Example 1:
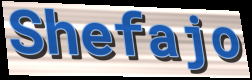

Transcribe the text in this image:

Shefajo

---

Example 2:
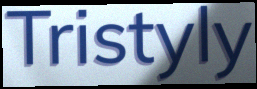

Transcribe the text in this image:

Tristyly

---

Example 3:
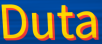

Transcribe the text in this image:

Duta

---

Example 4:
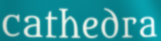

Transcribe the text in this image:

cathedra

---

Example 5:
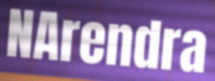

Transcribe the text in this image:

NArendra